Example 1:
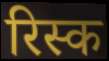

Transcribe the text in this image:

रिस्क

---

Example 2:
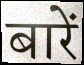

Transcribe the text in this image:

बारें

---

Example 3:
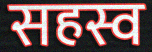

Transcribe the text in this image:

सहस्व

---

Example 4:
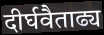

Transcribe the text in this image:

दीर्घवैताढ्य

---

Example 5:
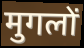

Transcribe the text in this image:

मुगलों